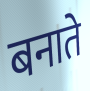
बनाते